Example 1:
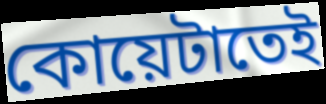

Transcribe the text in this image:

কোয়েটাতেই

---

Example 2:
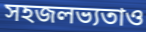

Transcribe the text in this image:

সহজলভ্যতাও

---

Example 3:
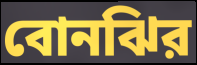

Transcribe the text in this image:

বোনঝির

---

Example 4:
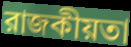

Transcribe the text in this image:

রাজকীয়তা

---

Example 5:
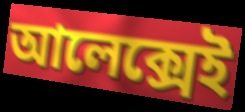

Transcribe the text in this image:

আলেক্সেই